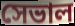
সেভাল